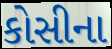
કોસીના